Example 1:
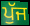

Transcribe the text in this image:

ਪੁੱਜ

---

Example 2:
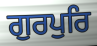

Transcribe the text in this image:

ਗੁਰਪੁਰਿ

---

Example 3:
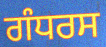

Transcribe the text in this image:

ਗੰਧਰਸ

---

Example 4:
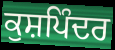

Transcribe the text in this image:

ਕੁਸ਼ਪਿੰਦਰ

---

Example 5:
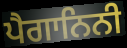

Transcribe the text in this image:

ਪੈਗਾਨਿਨੀ